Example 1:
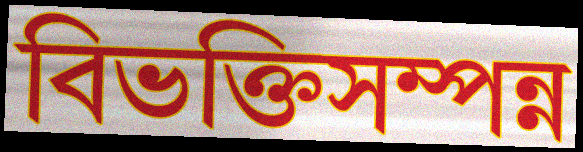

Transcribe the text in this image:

বিভক্তিসম্পন্ন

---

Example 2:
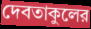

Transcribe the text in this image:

দেবতাকুলের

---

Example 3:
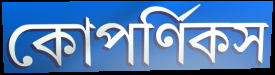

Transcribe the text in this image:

কোপর্ণিকস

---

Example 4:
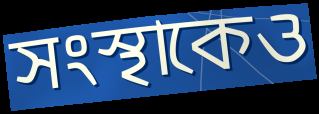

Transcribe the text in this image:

সংস্থাকেও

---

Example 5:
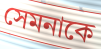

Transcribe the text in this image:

সেমনাকে